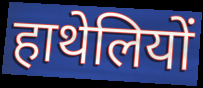
हाथेलियों